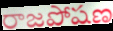
రాజపోషణ